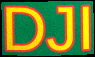
DJI